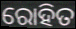
ରୋହିତ